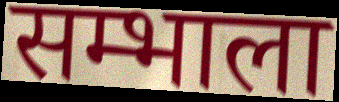
सम्भाला